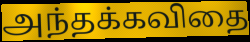
அந்தக்கவிதை